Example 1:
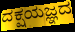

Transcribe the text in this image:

ದಕ್ಷಯಜ್ಞದ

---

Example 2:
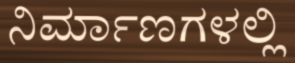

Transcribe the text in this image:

ನಿರ್ಮಾಣಗಳಲ್ಲಿ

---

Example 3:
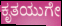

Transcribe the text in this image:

ಕೃತಯುಗೇ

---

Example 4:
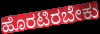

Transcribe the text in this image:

ಹೊರಟಿರಬೇಕು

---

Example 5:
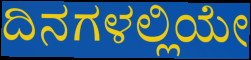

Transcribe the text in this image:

ದಿನಗಳಲ್ಲಿಯೇ